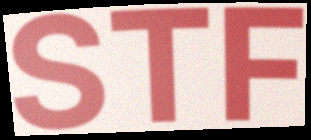
STF